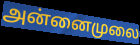
அன்னைமுலை